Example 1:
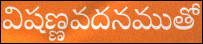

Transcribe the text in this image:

విషణ్ణవదనముతో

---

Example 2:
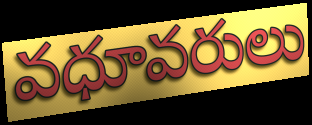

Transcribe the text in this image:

వధూవరులు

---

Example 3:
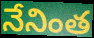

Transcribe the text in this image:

నేనింత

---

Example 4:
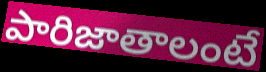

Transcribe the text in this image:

పారిజాతాలంటే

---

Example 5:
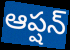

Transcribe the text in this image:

ఆప్షన్